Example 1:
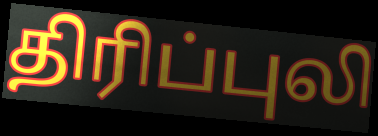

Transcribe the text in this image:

திரிப்புலி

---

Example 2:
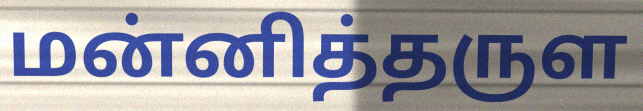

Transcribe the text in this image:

மன்னித்தருள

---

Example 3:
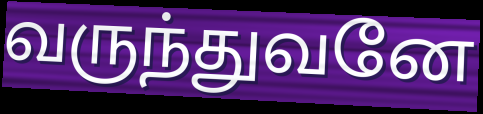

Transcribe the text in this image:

வருந்துவனே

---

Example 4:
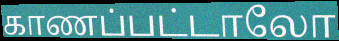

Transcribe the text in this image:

காணப்பட்டாலோ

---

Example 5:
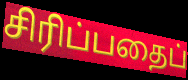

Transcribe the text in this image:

சிரிப்பதைப்